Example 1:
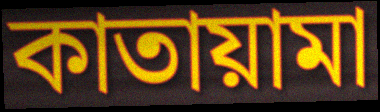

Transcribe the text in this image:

কাতায়ামা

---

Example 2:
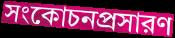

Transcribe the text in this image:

সংকোচনপ্রসারণ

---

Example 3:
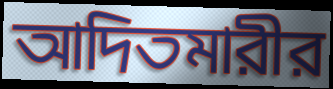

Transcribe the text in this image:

আদিতমারীর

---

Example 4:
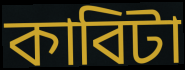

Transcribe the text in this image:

কাবিটা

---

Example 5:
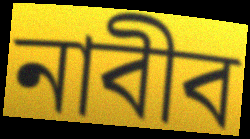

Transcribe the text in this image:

নাবীব